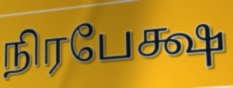
நிரபேக்ஷ